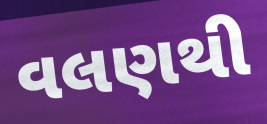
વલણથી